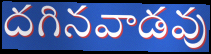
దగినవాడవు